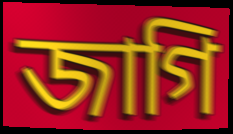
জাগি